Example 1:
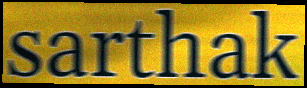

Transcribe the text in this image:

sarthak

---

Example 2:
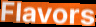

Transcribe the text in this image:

Flavors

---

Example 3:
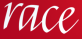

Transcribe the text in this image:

race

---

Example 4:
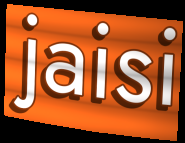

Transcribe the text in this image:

jaisi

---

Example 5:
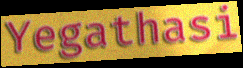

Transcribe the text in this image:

Yegathasi